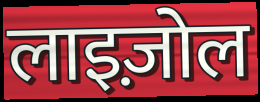
लाइज़ोल